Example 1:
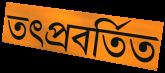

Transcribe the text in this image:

তৎপ্রবর্তিত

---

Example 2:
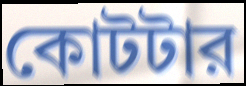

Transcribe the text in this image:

কোটটার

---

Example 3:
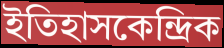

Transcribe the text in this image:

ইতিহাসকেন্দ্রিক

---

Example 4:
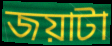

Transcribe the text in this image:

জয়াটা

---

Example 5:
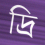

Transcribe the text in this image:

দ্রি